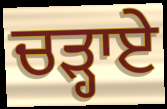
ਚੜ੍ਹਾਏ